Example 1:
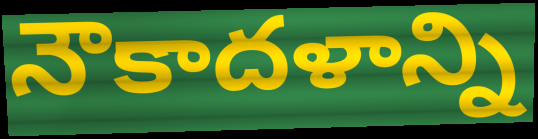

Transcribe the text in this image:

నౌకాదళాన్ని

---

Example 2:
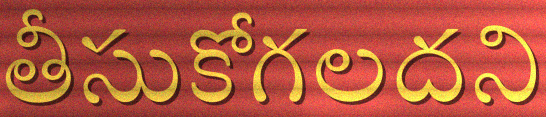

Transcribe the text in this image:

తీసుకోగలదని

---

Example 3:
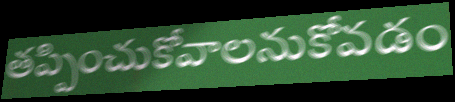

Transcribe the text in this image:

తప్పించుకోవాలనుకోవడం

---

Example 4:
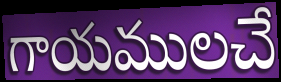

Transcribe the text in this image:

గాయములచే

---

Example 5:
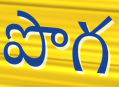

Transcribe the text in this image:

పొగ